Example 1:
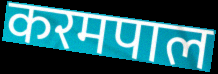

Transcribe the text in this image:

करमपाल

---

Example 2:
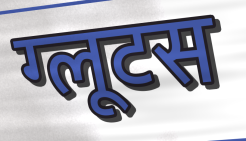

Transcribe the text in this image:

ग्लूटस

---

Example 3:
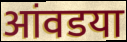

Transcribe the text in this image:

आंवडया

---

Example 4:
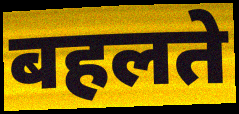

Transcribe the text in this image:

बहलते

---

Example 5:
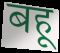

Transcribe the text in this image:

बहू